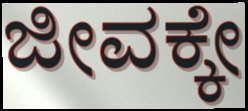
ಜೀವಕ್ಕೇ